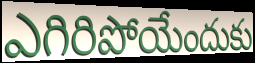
ఎగిరిపోయేందుకు